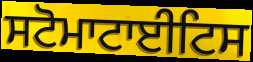
ਸਟੋਮਾਟਾਈਟਿਸ